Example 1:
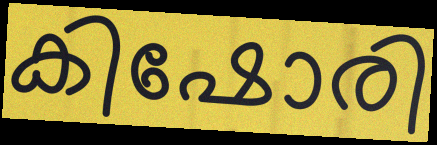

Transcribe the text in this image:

കിഷോരി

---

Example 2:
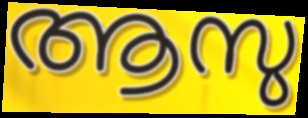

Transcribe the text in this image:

ആസു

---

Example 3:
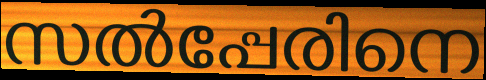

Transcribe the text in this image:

സൽപ്പേരിനെ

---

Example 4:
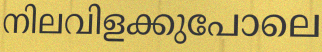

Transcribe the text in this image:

നിലവിളക്കുപോലെ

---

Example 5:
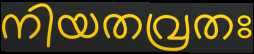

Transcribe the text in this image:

നിയതവ്രതഃ